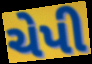
ચેપી